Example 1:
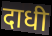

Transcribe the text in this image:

दाधी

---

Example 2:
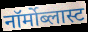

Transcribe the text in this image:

नॉर्मोब्लास्ट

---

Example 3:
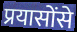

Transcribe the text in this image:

प्रयासोंसे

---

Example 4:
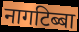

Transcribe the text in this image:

नागटिब्बा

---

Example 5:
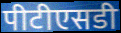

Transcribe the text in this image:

पीटीएसडी